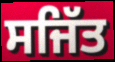
ਸਜਿੱਤ